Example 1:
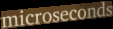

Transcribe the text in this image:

microseconds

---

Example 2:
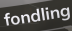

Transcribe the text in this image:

fondling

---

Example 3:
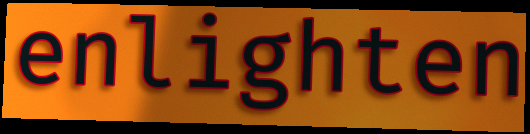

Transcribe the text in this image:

enlighten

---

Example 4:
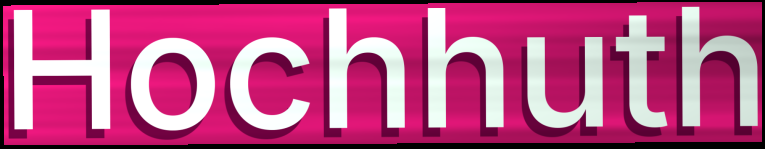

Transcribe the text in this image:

Hochhuth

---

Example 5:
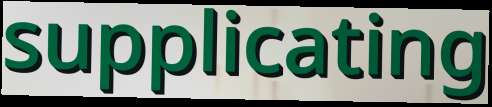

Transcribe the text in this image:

supplicating